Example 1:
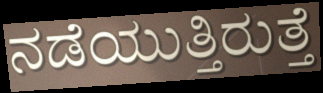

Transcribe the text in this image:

ನಡೆಯುತ್ತಿರುತ್ತೆ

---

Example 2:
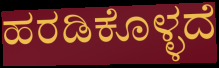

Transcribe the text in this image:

ಹರಡಿಕೊಳ್ಳದೆ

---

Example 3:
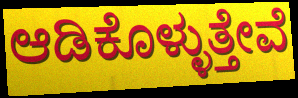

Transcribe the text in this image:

ಆಡಿಕೊಳ್ಳುತ್ತೇವೆ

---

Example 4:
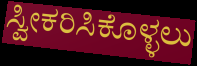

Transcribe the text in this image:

ಸ್ವೀಕರಿಸಿಕೊಳ್ಳಲು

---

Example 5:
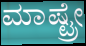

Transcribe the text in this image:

ಮಾಷ್ಟ್ರೇ